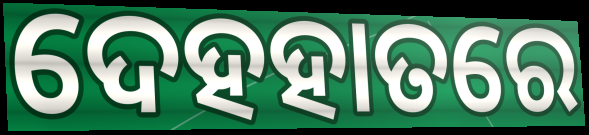
ଦେହହାତରେ